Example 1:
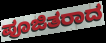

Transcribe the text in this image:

ಪೂಜಿತರಾದ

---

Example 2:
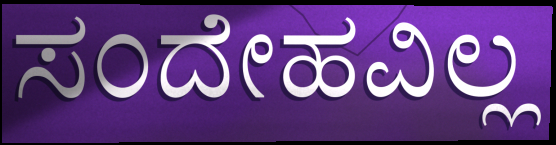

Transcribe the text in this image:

ಸಂದೇಹವಿಲ್ಲ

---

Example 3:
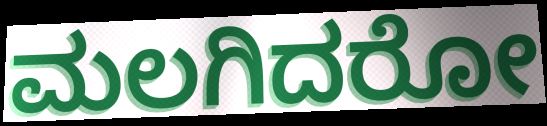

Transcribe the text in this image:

ಮಲಗಿದರೋ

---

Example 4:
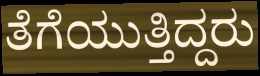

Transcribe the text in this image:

ತೆಗೆಯುತ್ತಿದ್ದರು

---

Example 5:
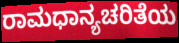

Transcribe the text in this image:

ರಾಮಧಾನ್ಯಚರಿತೆಯ